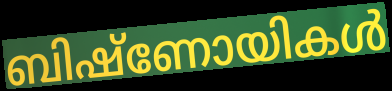
ബിഷ്ണോയികൾ